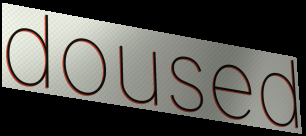
doused